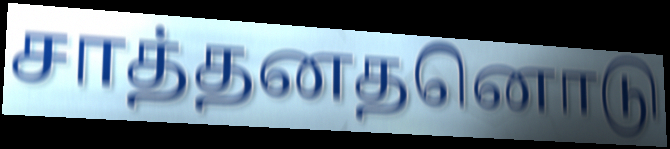
சாத்தனதனொடு